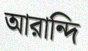
আরান্দি